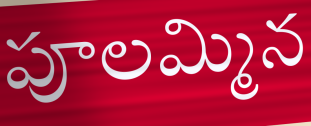
పూలమ్మిన